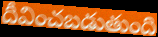
దీవించబడుతుంది